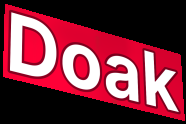
Doak